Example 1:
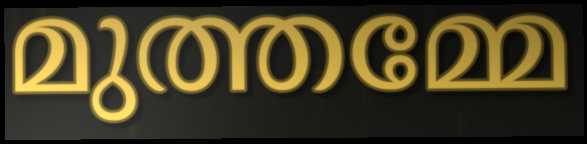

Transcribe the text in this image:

മുത്തമ്മേ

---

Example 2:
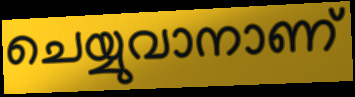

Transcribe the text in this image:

ചെയ്യുവാനാണ്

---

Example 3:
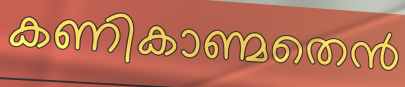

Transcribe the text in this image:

കണികാണ്മതെൻ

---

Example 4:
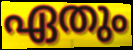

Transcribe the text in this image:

ഏതും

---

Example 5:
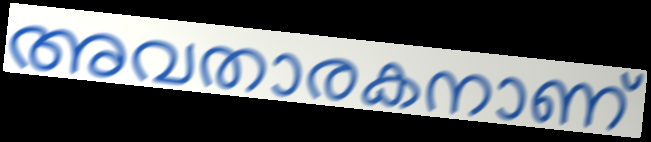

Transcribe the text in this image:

അവതാരകനാണ്